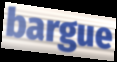
bargue